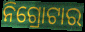
ନିଗ୍ରୋଟାର